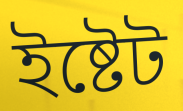
ইষ্টেট